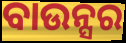
ବାଉନ୍ସର